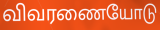
விவரணையோடு